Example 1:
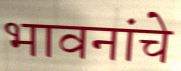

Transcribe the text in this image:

भावनांचे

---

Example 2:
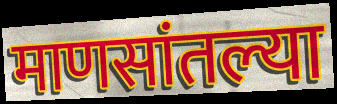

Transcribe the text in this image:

माणसांतल्या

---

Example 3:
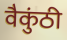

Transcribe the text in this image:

वैकुंठी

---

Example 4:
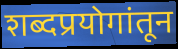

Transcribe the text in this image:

शब्दप्रयोगांतून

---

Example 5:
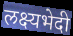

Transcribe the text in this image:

लक्ष्यभेदी